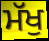
ਮੱਖੁ